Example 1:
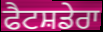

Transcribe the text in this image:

ਫੈਟਸ਼ਡੇਰਾ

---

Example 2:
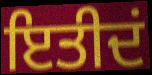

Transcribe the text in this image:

ਇਤੀਦਂ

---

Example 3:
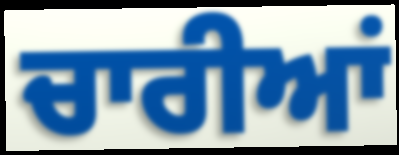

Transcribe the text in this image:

ਚਾਰੀਆਂ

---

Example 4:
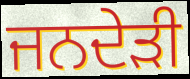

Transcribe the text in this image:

ਜਨਦੇੜੀ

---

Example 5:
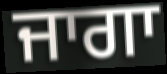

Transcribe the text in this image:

ਜਾਗਾ